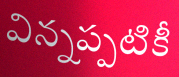
విన్నప్పటికీ